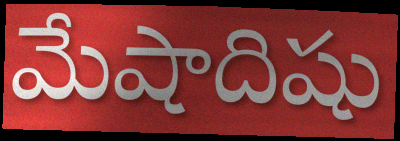
మేషాదిషు